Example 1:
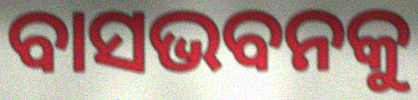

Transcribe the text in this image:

ବାସଭବନକୁ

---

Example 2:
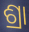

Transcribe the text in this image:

ଶ୍ରା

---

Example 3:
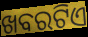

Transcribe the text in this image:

ଖବରଟିଏ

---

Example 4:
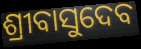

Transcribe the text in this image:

ଶ୍ରୀବାସୁଦେବ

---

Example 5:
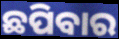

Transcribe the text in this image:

ଛପିବାର